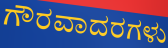
ಗೌರವಾದರಗಳು